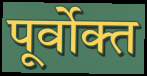
पूर्वोक्त